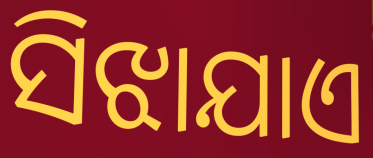
ସିଝାଯାଏ